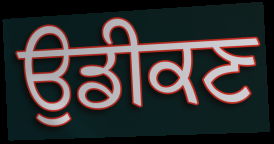
ਉਡੀਕਣ